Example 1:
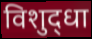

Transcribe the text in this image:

विशुद्धा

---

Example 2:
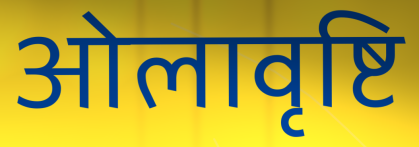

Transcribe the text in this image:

ओलावृष्टि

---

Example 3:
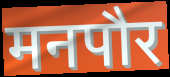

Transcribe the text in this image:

मनपौर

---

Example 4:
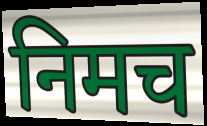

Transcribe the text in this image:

निमच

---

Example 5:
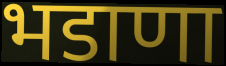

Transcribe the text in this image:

भडाणा